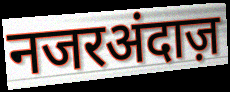
नजरअंदाज़